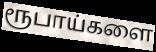
ரூபாய்களை